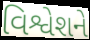
વિશ્વેશને